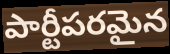
పార్టీపరమైన